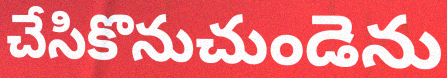
చేసికొనుచుండెను